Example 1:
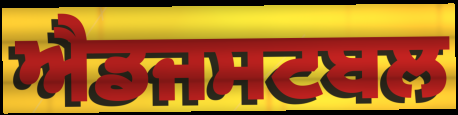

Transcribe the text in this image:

ਐਡਜਸਟਬਲ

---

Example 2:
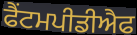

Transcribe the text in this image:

ਫੈਂਟਮਪੀਡੀਐਫ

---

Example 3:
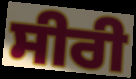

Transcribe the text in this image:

ਸੀਰੀ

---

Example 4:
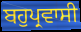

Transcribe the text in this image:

ਬਹੁਪ੍ਰਵਾਸੀ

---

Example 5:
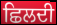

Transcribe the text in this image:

ਛਿਲਦੀ